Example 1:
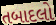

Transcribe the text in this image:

તબાદલો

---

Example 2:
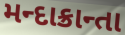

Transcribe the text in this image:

મન્દાક્રાન્તા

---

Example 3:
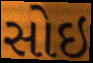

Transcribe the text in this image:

સોઇ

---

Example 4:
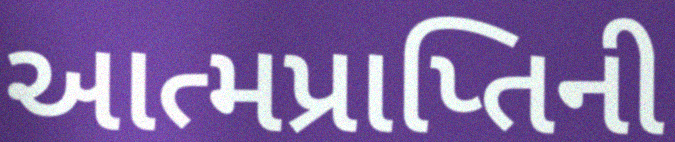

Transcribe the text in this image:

આત્મપ્રાપ્તિની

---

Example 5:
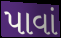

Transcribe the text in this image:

પાવાં